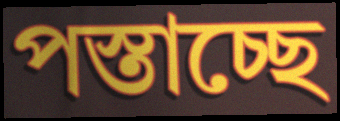
পস্তাচ্ছে